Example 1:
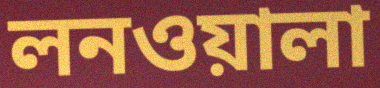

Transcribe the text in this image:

লনওয়ালা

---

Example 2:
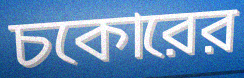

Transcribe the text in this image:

চকোরের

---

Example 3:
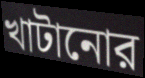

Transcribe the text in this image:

খাটানোর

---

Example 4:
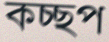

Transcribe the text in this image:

কচ্ছপ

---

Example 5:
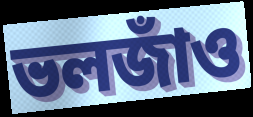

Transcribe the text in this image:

ভলজাঁও